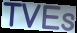
TVEs